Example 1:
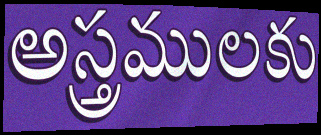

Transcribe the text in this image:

అస్త్రములకు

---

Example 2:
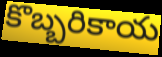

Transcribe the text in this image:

కొబ్బరికాయ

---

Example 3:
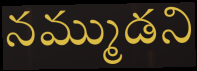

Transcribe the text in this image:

నమ్ముడని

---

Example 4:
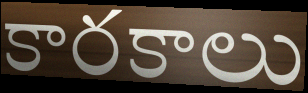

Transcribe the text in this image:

కారకాలు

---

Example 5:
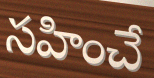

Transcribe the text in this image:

సహించే